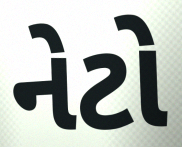
નેટો